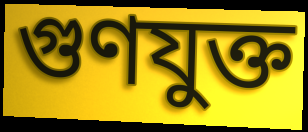
গুণযুক্ত